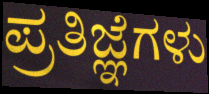
ಪ್ರತಿಜ್ಞೆಗಳು